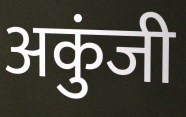
अकुंजी